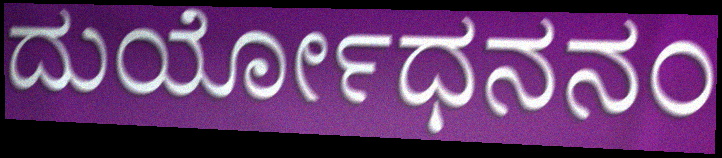
ದುರ್ಯೋಧನನಂ